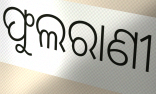
ଫୁଲରାଣୀ